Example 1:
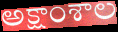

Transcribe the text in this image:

అక్షాంశాల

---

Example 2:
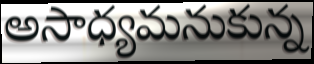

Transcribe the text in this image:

అసాధ్యమనుకున్న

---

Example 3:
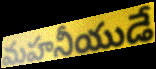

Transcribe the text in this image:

మహనీయుడే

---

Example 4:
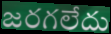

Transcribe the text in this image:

జరగలేదు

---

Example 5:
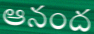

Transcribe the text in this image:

ఆనంద